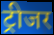
ट्रीजर